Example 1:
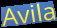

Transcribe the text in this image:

Avila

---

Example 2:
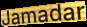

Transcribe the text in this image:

Jamadar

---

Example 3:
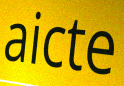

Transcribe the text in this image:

aicte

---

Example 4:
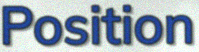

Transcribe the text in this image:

Position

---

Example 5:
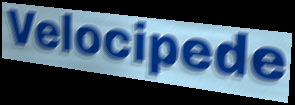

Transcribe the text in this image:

Velocipede